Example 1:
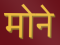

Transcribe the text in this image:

मोने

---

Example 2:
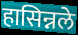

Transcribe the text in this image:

हासिन्नले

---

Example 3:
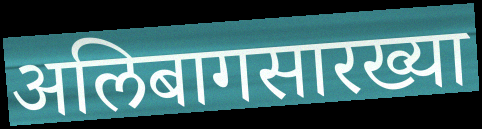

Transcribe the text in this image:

अलिबागसारख्या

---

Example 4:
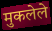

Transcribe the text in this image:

मुकलेले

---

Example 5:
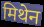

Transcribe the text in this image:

मिथेन